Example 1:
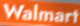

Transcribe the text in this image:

Walmart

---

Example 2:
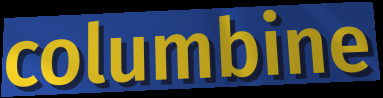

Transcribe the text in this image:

columbine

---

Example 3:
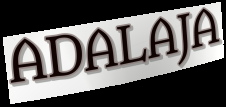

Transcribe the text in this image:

ADALAJA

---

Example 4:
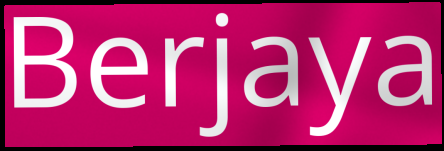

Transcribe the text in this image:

Berjaya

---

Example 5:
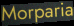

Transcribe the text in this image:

Morparia